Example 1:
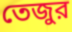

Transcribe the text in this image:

তেজুর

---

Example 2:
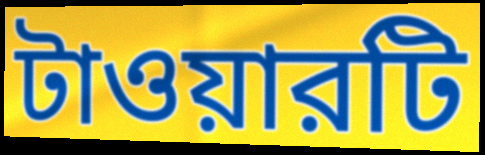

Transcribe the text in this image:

টাওয়ারটি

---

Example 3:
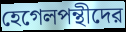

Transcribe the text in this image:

হেগেলপন্থীদের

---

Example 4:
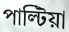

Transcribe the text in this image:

পাল্টিয়া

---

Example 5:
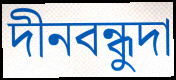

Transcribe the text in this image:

দীনবন্ধুদা